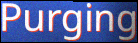
Purging